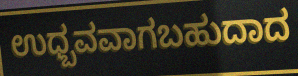
ಉಧ್ಬವವಾಗಬಹುದಾದ